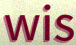
wis